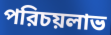
পরিচয়লাভ